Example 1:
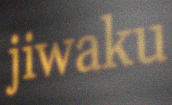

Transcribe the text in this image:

jiwaku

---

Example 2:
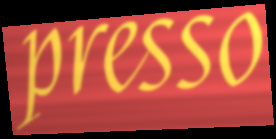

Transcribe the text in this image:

presso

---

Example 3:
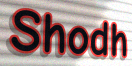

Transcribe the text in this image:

Shodh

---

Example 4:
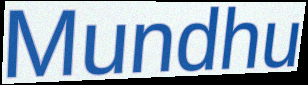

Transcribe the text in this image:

Mundhu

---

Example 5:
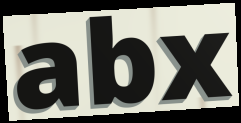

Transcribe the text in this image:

abx